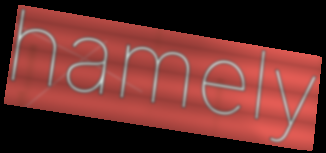
hamely